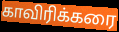
காவிரிக்கரை